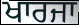
ਖਾਰਜਾ